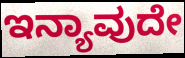
ಇನ್ಯಾವುದೇ